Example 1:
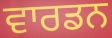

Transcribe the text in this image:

ਵਾਰਡਨ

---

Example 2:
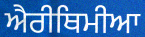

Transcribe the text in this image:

ਐਰੀਥਿਮੀਆ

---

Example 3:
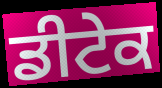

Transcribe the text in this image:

ਡੀਟੇਕ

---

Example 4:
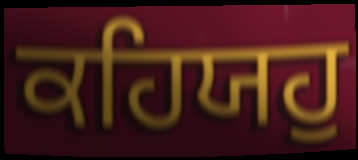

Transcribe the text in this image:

ਕਹਿਯਹੁ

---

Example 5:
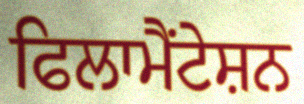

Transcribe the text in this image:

ਫਿਲਾਮੈਂਟੇਸ਼ਨ